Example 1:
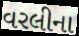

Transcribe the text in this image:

વરલીના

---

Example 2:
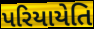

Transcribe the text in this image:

પરિયાયેતિ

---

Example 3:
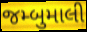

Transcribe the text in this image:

જમ્બુમાલી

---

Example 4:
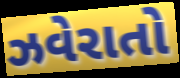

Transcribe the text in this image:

ઝવેરાતો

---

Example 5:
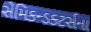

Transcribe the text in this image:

સેમિકન્ડક્ટર્સના